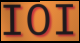
IOI